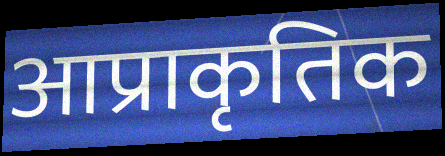
आप्राकृतिक